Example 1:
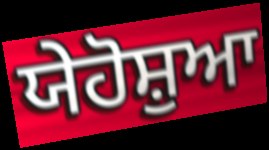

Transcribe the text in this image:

ਯੇਹੋਸ਼ੁਆ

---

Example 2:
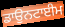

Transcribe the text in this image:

ਡਾਉਨਟਾਈਮ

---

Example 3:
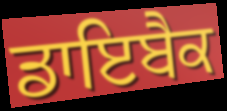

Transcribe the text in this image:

ਡਾਇਬੈਕ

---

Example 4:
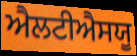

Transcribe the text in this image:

ਐਲਟੀਐਸਯੂ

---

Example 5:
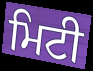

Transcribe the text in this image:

ਮਿਟੀ